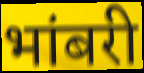
भांबरी